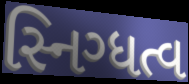
સ્નિગ્ધત્વ